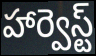
హార్వెస్ట్